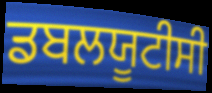
ਡਬਲਯੂਟੀਸੀ